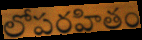
లోపరహితం